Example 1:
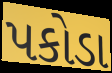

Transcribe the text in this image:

પકોડા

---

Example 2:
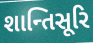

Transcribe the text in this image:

શાન્તિસૂરિ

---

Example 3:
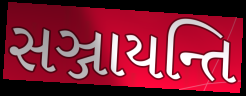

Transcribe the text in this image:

સઞ્જાયન્તિ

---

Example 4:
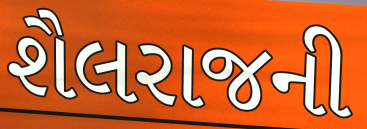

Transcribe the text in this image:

શૈલરાજની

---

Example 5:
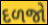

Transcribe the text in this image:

દળજો